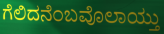
ಗೆಲಿದನೆಂಬವೊಲಾಯ್ತು